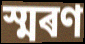
স্মৰণ